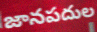
జానపదుల